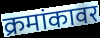
क्रमांकावर